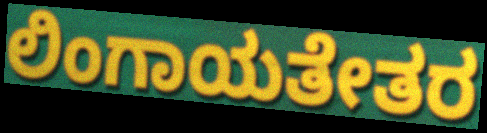
ಲಿಂಗಾಯತೇತರ